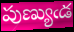
పుణ్యుఁడ